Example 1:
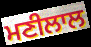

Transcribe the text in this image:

ਮਣੀਲਾਲ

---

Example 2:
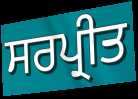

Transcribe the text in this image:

ਸਰਪ੍ਰੀਤ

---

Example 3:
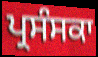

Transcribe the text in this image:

ਪ੍ਰਸੰਸਕਾ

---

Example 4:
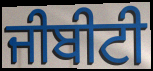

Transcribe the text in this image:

ਜੀਬੀਟੀ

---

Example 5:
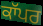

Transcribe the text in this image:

ਕਾੱਪਰ